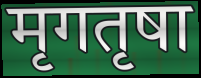
मृगतृषा